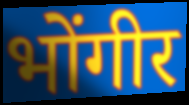
भोंगीर